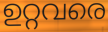
ഉറ്റവരെ